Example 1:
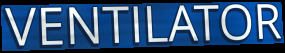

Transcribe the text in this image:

VENTILATOR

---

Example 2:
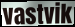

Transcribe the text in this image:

vastvik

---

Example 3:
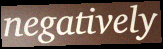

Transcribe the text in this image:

negatively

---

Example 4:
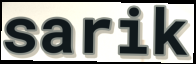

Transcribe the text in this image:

sarik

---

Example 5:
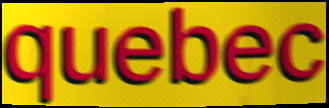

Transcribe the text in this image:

quebec